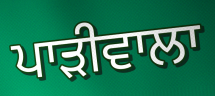
ਪਾੜੀਵਾਲਾ